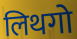
लिथगो